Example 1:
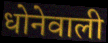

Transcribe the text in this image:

धोनेवाली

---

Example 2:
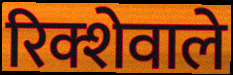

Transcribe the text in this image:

रिक्‍शेवाले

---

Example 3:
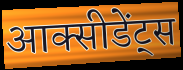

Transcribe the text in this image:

आक्सीडेंट्स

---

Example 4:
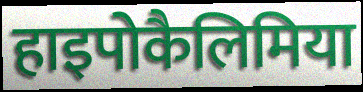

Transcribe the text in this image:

हाइपोकैलिमिया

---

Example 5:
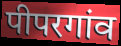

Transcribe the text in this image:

पीपरगांव